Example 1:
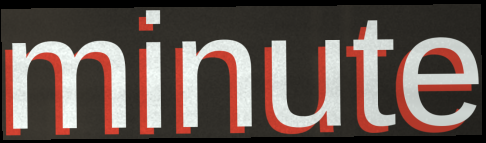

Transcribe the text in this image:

minute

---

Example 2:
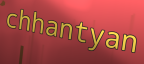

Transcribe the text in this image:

chhantyan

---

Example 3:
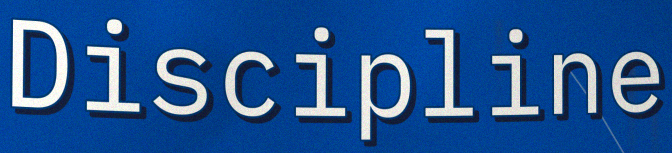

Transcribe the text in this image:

Discipline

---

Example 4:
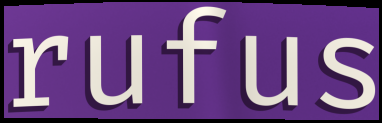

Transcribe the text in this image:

rufus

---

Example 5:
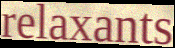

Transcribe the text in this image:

relaxants